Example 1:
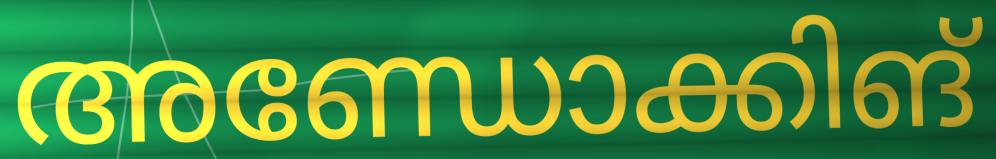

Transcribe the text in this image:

അണ്ഡോക്കിങ്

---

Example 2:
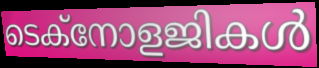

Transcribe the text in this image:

ടെക്നോളജികൾ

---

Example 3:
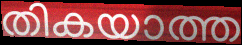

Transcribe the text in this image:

തികയാത്ത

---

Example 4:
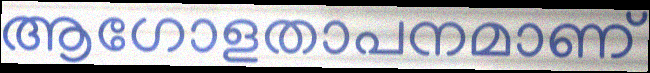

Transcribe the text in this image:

ആഗോളതാപനമാണ്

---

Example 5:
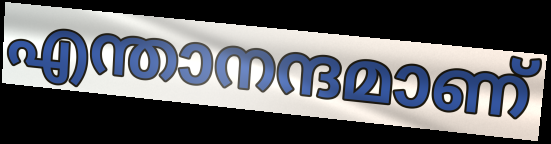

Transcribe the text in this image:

എന്താനന്ദമാണ്